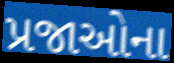
પ્રજાઓના